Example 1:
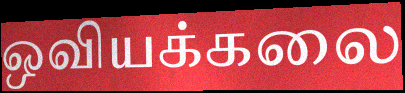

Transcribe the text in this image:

ஒவியக்கலை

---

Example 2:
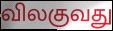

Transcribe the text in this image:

விலகுவது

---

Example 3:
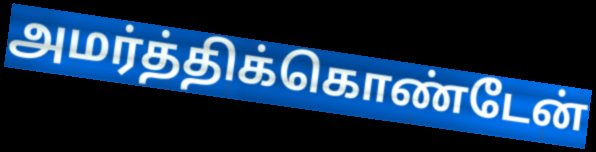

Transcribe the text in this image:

அமர்த்திக்கொண்டேன்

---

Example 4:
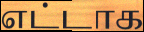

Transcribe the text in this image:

எட்டாக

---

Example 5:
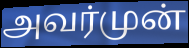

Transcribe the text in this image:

அவர்முன்